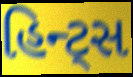
હિન્ટ્સ